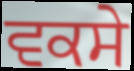
ਵਕਸੇ